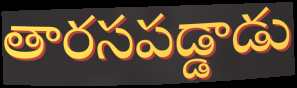
తారసపడ్డాడు